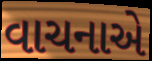
વાચનાએ